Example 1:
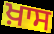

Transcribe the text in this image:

ਖ਼ਾਸ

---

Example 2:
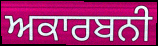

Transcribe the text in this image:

ਅਕਾਰਬਨੀ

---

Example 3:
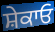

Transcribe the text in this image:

ਸ਼ੇਕਾਓ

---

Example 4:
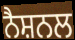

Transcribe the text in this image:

ਨੈਸ਼ਨਲ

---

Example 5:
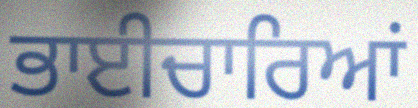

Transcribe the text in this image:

ਭਾਈਚਾਰਿਆਂ